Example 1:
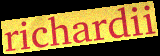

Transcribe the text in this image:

richardii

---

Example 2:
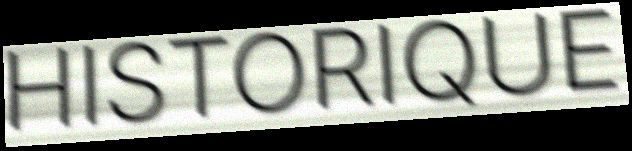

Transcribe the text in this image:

HISTORIQUE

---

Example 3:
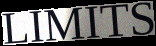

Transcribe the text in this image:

LIMITS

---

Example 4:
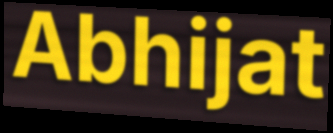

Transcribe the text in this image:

Abhijat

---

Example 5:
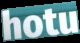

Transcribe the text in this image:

hotu